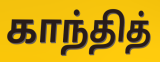
காந்தித்